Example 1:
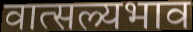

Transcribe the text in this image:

वात्सल्यभाव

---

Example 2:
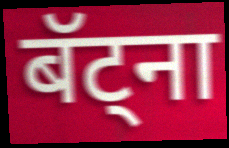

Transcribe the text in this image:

बॅट्ना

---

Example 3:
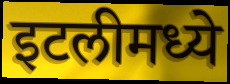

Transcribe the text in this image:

इटलीमध्ये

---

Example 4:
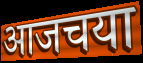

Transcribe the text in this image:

आजचया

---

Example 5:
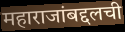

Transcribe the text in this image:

महाराजांबद्दलची